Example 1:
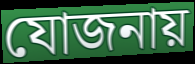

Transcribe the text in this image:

যোজনায়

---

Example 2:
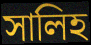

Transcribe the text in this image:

সালিহ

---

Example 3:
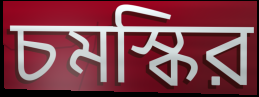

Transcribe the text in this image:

চমস্কির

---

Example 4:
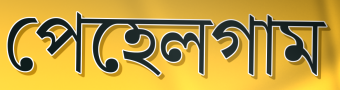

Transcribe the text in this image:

পেহেলগাম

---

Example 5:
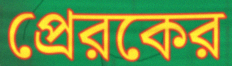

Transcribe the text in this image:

প্রেরকের